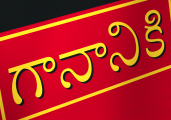
గానానికి